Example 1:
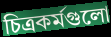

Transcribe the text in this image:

চিত্রকর্মগুলো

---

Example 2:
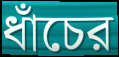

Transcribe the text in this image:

ধাঁচের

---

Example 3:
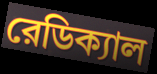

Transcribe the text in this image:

রেডিক্যাল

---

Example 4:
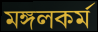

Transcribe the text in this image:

মঙ্গলকর্ম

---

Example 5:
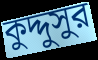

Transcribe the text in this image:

কুদ্দুসুর